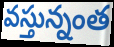
వస్తున్నంత